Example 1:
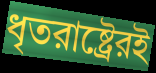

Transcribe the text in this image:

ধৃতরাষ্ট্রেরই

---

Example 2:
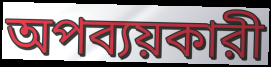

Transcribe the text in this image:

অপব্যয়কারী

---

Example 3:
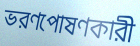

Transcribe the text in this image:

ভরণপোষণকারী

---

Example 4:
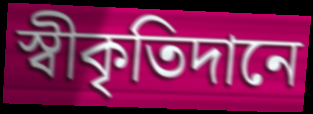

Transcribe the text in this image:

স্বীকৃতিদানে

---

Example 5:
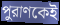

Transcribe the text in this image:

পুরাণকেই